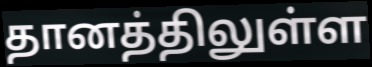
தானத்திலுள்ள